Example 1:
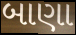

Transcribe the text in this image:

બાણા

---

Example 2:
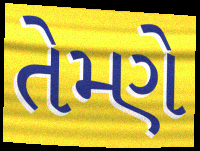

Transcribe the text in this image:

તેમ્ણે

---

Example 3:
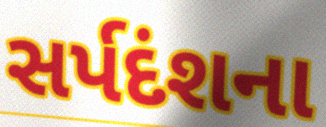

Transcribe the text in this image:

સર્પદંશના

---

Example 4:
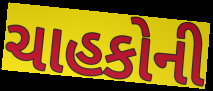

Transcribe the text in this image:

ચાહકોની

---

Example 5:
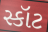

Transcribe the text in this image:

સ્કૉટ